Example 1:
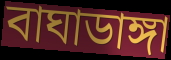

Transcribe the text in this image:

বাঘাডাঙ্গা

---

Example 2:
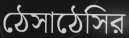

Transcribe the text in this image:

ঠেসাঠেসির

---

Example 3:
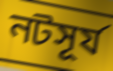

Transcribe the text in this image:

নটসূর্য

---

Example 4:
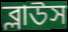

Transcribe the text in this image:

ব্লাউস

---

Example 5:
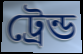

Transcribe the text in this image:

ট্রেন্ড